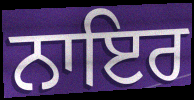
ਨਾਇਰ